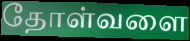
தோள்வளை